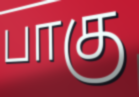
பாகு